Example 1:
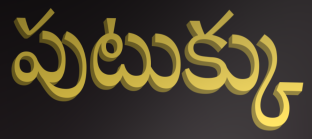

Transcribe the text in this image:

పుటుక్కు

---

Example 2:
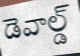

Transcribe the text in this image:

డెవాల్డ్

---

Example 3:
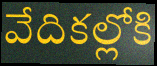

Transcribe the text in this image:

వేదికల్లోకి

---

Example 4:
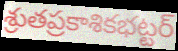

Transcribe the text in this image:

శ్రుతప్రకాశికభట్టర్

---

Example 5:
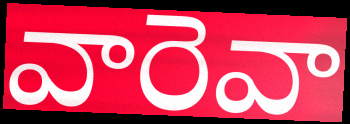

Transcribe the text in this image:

వారెవా